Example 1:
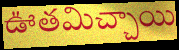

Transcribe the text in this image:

ఊతమిచ్చాయి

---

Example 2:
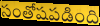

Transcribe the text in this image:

సంతోషపడింది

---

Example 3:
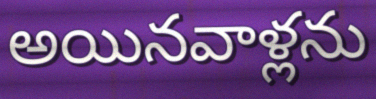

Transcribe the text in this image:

అయినవాళ్లను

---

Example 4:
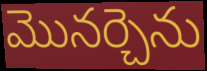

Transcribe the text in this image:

మొనర్చెను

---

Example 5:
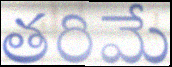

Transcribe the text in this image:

తరిమే